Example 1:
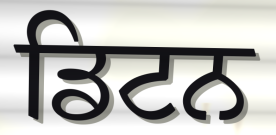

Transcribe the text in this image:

ਡਿਟਨ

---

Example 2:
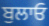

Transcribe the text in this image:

ਬੁਲਾਓ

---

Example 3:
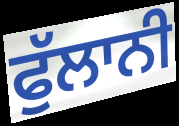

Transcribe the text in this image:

ਫੁੱਲਾਨੀ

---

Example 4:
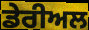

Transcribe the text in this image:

ਡੇਰੀਅਲ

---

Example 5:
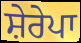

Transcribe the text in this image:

ਸ਼ੇਰੇਪਾ